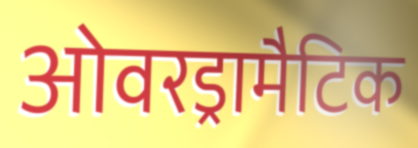
ओवरड्रामैटिक